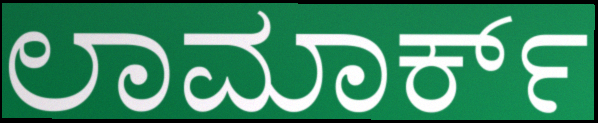
ಲಾಮಾರ್ಕ್